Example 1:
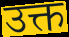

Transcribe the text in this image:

उक्त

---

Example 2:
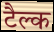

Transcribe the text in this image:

टैल्क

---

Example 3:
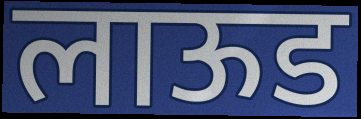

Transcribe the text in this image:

लाऊड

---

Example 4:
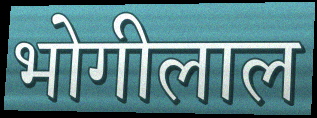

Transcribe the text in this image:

भोगीलाल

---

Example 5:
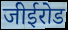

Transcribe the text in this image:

जीईरोड